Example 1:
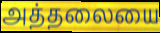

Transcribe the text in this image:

அத்தலையை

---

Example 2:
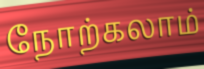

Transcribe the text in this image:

நோற்கலாம்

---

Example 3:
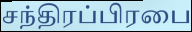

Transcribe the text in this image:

சந்திரப்பிரபை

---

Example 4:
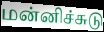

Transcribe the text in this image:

மன்னிச்சுடு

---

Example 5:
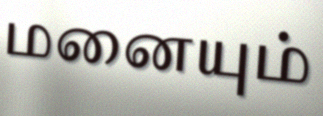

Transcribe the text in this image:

மனையும்